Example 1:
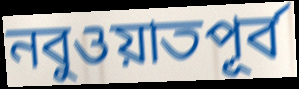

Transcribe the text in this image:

নবুওয়াতপূর্ব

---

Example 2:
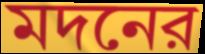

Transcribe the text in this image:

মদনের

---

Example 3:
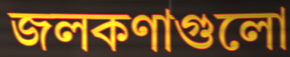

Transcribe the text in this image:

জলকণাগুলো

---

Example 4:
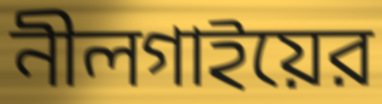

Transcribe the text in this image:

নীলগাইয়ের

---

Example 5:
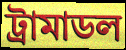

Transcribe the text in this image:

ট্রামাডল